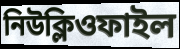
নিউক্লিওফাইল